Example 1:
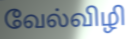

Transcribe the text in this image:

வேல்விழி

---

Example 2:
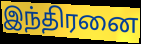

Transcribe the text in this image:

இந்திரனை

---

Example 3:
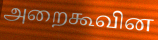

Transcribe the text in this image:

அறைகூவின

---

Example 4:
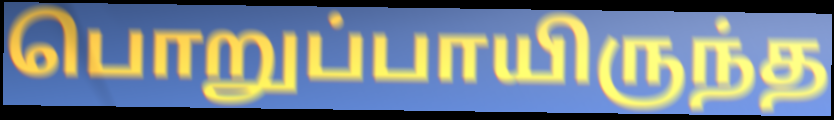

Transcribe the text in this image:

பொறுப்பாயிருந்த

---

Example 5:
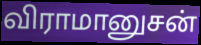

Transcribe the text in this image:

விராமானுசன்